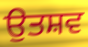
ਉਤਸ਼ਵ